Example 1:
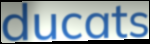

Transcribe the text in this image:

ducats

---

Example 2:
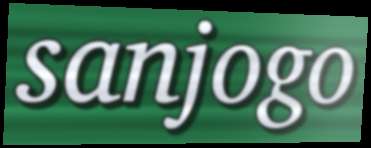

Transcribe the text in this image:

sanjogo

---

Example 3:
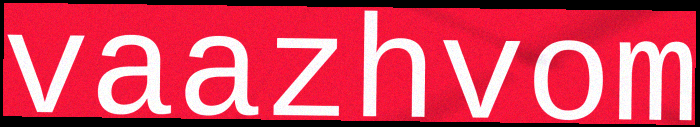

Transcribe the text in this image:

vaazhvom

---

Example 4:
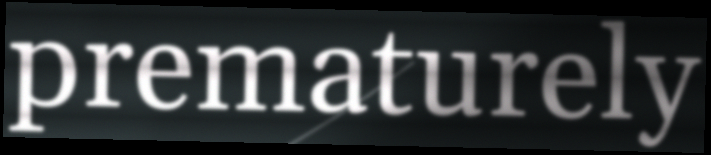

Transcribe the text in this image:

prematurely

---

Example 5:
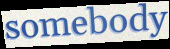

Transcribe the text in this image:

somebody